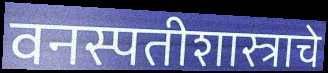
वनस्पतीशास्त्राचे